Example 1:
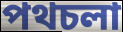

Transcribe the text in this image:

পথচলা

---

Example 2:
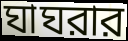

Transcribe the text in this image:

ঘাঘরার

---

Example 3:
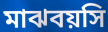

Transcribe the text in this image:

মাঝবয়সি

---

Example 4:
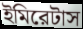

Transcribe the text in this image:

ইমিরেটাস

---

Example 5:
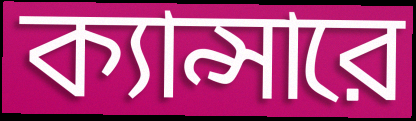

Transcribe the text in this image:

ক্যান্সারে